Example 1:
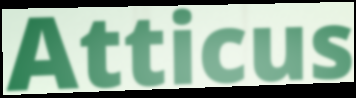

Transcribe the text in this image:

Atticus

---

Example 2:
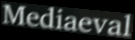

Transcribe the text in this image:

Mediaeval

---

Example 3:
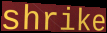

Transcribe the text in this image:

shrike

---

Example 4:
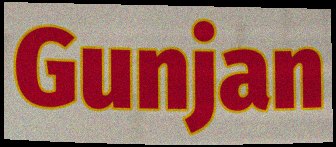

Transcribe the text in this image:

Gunjan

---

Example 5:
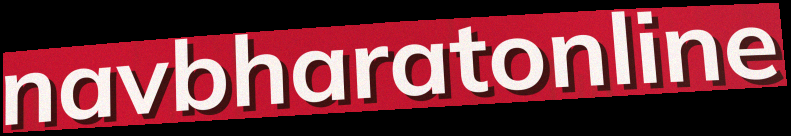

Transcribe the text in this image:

navbharatonline